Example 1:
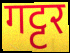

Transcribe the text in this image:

गट्टर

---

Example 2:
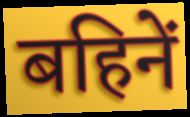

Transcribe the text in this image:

बहिनें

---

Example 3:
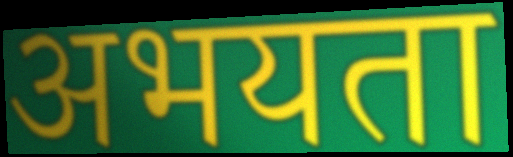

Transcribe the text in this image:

अभयता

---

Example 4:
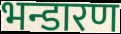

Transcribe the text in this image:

भन्डारण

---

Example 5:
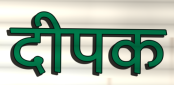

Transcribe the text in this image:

दीपक